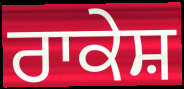
ਰਾਕੇਸ਼